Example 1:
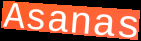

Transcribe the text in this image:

Asanas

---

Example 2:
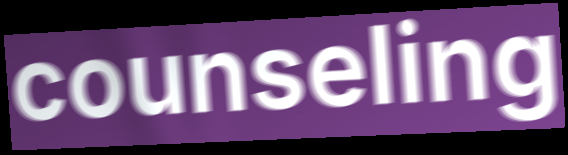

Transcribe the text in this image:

counseling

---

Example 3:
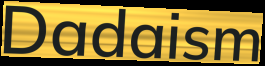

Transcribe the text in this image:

Dadaism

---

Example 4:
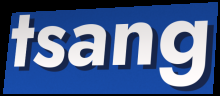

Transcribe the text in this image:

tsang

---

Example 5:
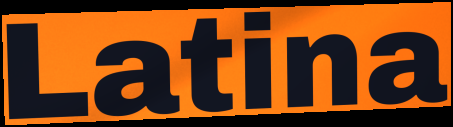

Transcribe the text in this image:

Latina